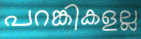
പറങ്കികളല്ല